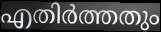
എതിർത്തതും